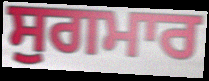
ਸੁਗਮਾਰ